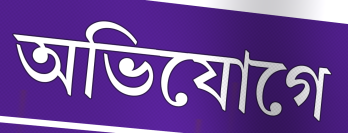
অভিযোগে